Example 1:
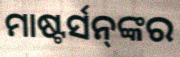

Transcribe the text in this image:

ମାଷ୍ଟର୍ସନ୍‌ଙ୍କର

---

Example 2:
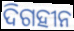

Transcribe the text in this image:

ଦିଗହୀନ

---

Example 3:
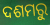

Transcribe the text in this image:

ଦଶମରୁ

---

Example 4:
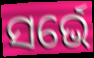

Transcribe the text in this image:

ସର୍ଭେ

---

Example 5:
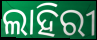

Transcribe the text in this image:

ଲାହିରୀ